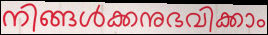
നിങ്ങൾക്കനുഭവിക്കാം